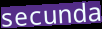
secunda